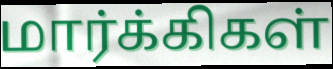
மார்க்கிகள்